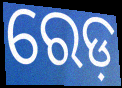
ରେଡ଼